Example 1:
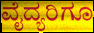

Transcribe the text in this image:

ವೈದ್ಯರಿಗೂ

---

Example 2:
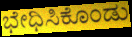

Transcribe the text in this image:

ಭೇಧಿಸಿಕೊಂಡು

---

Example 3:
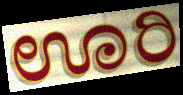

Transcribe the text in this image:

ಊರಿ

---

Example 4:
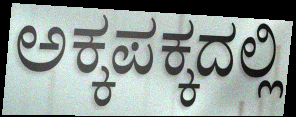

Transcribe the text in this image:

ಅಕ್ಕಪಕ್ಕದಲ್ಲಿ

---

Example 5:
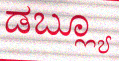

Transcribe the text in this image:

ಡಬ್ಲ್ಯೂ